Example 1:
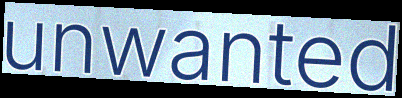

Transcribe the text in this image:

unwanted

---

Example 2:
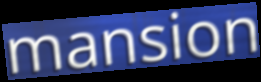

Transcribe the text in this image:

mansion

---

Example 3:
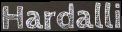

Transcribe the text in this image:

Hardalli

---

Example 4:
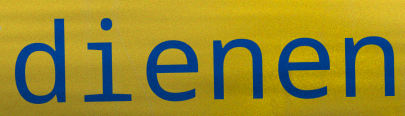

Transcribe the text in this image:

dienen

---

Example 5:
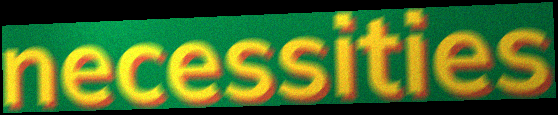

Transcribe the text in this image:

necessities